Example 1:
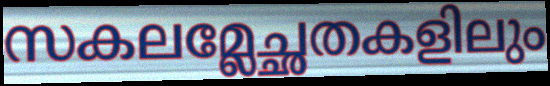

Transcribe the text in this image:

സകലമ്ലേച്ഛതകളിലും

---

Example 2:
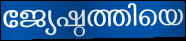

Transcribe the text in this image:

ജ്യേഷ്ഠത്തിയെ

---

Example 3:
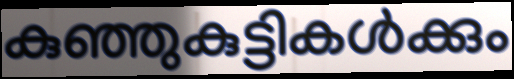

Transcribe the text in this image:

കുഞ്ഞുകുട്ടികൾക്കും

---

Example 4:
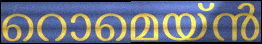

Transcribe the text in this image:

റൊമെയ്ൻ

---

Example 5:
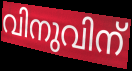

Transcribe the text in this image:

വിനുവിന്